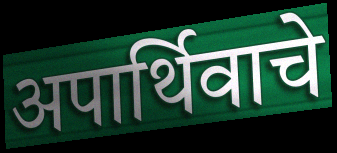
अपार्थिवाचे